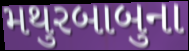
મથુરબાબુના